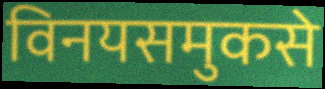
विनयसमुकसे